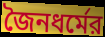
জৈনধর্মের